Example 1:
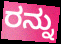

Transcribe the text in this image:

ರನ್ನು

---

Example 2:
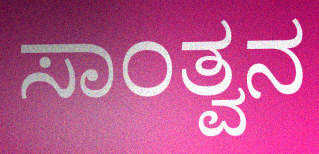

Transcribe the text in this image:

ಸಾಂತ್ವನ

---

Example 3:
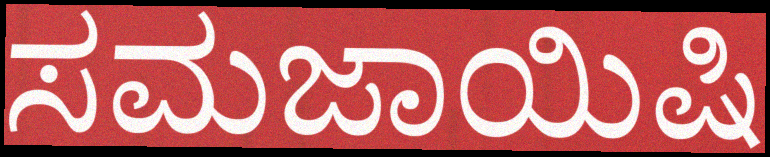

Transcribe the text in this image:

ಸಮಜಾಯಿಷಿ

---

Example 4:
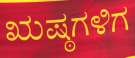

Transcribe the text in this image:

ಋಷ್ಠಗಳಿಗ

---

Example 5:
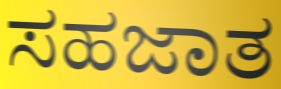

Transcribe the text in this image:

ಸಹಜಾತ